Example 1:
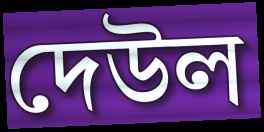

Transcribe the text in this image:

দেউল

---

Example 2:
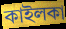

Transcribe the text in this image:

কাইলকা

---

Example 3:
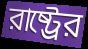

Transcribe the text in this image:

রাষ্ট্রের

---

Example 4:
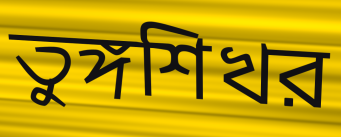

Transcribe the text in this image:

তুঙ্গশিখর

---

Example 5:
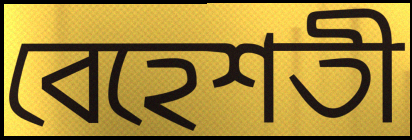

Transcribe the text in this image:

বেহেশতী